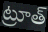
ట్రూత్